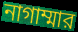
নাগাম্মার